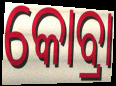
କୋବ୍ରା